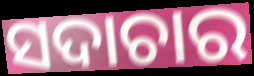
ସଦାଚାର